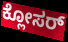
ಕ್ಲೋಸರ್